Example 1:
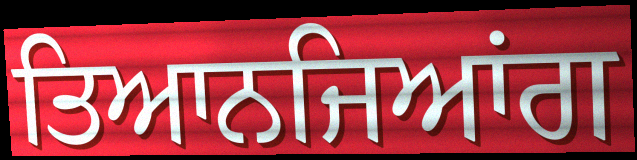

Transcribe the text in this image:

ਤਿਆਨਜਿਆਂਗ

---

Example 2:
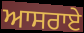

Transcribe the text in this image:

ਆਸਰਾਏ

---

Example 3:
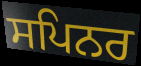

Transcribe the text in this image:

ਸਪਿਨਰ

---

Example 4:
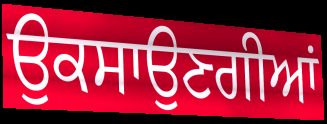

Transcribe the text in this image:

ਉਕਸਾਉਣਗੀਆਂ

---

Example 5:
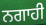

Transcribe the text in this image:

ਨਗਾਹੀ